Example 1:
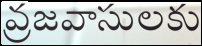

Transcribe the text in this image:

వ్రజవాసులకు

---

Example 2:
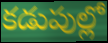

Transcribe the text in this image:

కడుపుల్లో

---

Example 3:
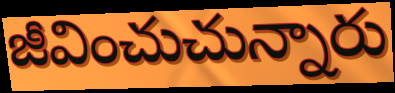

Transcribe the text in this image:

జీవించుచున్నారు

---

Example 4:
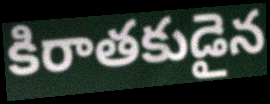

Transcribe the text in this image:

కిరాతకుడైన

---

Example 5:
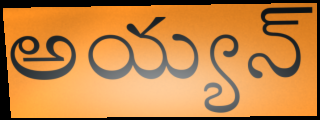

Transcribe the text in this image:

అయ్యన్